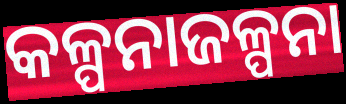
କଳ୍ପନାଜଳ୍ପନା